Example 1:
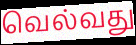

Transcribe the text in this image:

வெல்வது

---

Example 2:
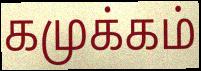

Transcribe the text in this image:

கமுக்கம்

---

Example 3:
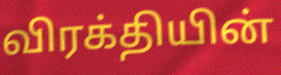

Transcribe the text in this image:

விரக்தியின்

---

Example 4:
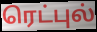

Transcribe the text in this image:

ரெட்புல்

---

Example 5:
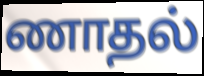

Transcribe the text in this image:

ணாதல்